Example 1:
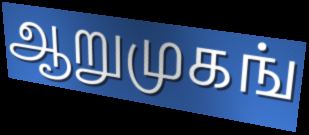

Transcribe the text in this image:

ஆறுமுகங்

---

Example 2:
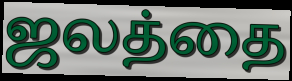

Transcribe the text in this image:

ஜலத்தை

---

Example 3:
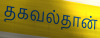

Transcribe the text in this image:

தகவல்தான்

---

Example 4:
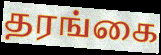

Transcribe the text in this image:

தரங்கை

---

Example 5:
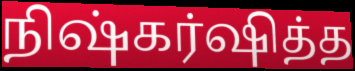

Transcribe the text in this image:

நிஷ்கர்ஷித்த